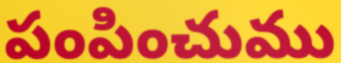
పంపించుము